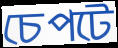
চেপটে